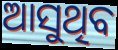
ଆସୁଥିବ